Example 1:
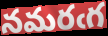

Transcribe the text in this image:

నమరఁగ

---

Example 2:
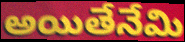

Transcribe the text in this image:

అయితేనేమి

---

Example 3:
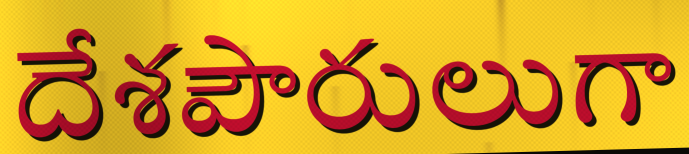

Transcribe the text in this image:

దేశపౌరులుగా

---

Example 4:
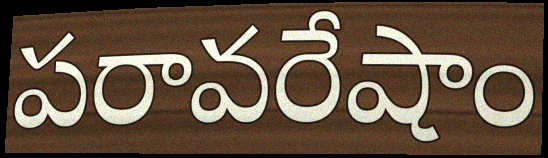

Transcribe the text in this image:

పరావరేషాం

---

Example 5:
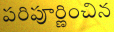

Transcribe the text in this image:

పరిపూర్ణించిన